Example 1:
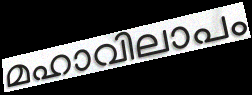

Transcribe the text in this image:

മഹാവിലാപം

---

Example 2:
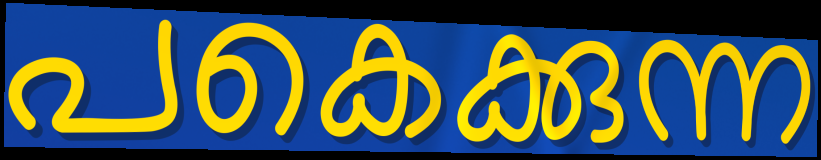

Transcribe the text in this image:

പകെക്കുന്ന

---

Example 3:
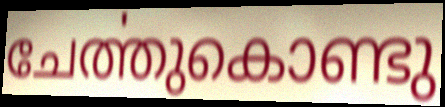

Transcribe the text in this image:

ചേൎത്തുകൊണ്ടു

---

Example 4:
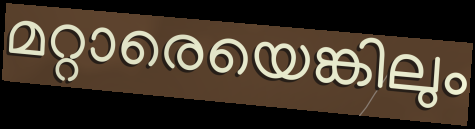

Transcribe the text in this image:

മറ്റാരെയെങ്കിലും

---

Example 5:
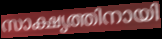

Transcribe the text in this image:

സാക്ഷ്യത്തിനായി